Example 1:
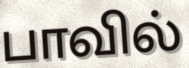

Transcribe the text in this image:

பாவில்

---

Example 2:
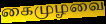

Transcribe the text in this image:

கைமுழவை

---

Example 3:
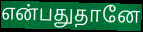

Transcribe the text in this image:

என்பதுதானே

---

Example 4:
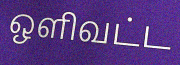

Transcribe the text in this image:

ஒளிவட்ட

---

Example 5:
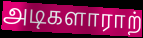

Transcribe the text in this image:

அடிகளாராற்